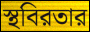
স্থবিরতার